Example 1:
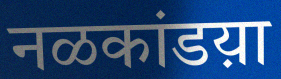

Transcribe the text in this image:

नळकांडय़ा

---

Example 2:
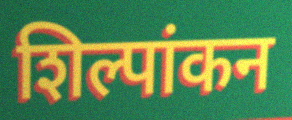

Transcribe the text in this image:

शिल्पांकन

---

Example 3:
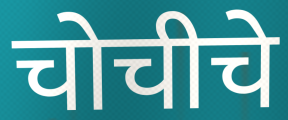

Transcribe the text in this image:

चोचीचे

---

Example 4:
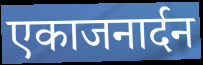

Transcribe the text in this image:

एकाजनार्दन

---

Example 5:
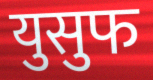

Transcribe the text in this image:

युसुफ